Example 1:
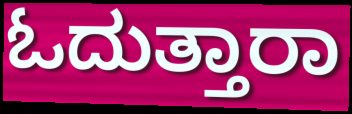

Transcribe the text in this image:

ಓದುತ್ತಾರಾ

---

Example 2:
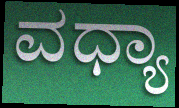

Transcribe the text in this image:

ವಧ್ಯಾ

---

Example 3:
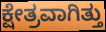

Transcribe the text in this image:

ಕ್ಷೇತ್ರವಾಗಿತ್ತು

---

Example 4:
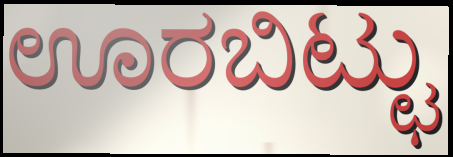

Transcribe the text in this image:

ಊರಬಿಟ್ಟು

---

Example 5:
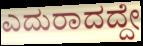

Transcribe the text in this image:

ಎದುರಾದದ್ದೇ